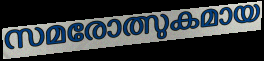
സമരോത്സുകമായ